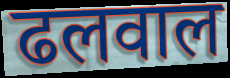
ढलवाल